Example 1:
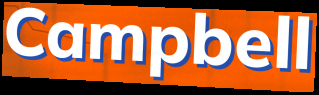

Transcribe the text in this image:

Campbell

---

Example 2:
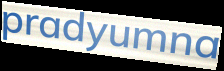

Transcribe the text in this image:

pradyumna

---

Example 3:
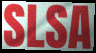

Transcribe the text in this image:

SLSA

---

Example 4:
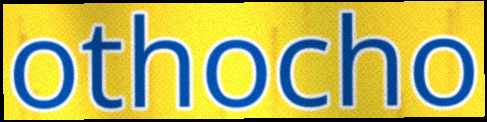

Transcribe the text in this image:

othocho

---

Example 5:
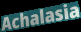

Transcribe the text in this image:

Achalasia